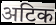
अटिक